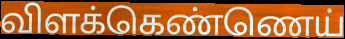
விளக்கெண்ணெய்